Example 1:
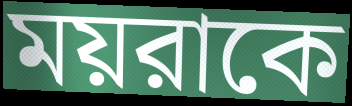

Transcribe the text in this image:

ময়রাকে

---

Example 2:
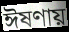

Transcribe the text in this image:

ঈষণায়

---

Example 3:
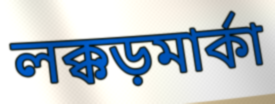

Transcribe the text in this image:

লক্কড়মার্কা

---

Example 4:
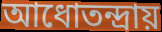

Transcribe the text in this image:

আধোতন্দ্রায়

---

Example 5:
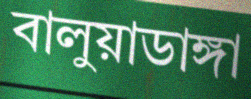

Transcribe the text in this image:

বালুয়াডাঙ্গা